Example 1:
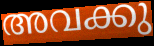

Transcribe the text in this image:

അവക്കു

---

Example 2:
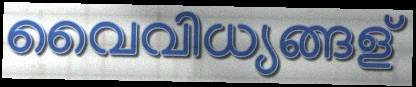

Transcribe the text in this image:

വൈവിധ്യങ്ങള്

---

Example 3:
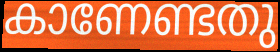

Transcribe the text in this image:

കാണേണ്ടതു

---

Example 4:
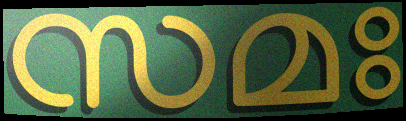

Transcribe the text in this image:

സമഃ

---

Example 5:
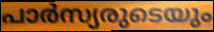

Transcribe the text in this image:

പാർസ്യരുടെയും